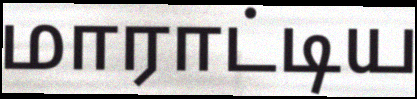
மாராட்டிய